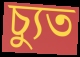
চ্যুত